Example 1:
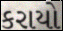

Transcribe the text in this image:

કરાયો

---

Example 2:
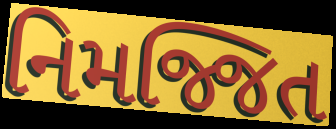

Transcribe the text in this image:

નિમજ્જિત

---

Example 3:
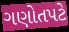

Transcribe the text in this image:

ગણોતપટે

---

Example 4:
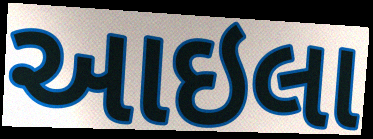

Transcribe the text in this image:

આઇલા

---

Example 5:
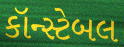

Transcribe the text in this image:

કૉન્સ્ટેબલ